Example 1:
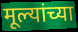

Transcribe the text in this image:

मूल्यांच्या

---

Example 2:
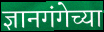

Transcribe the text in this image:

ज्ञानगंगेच्या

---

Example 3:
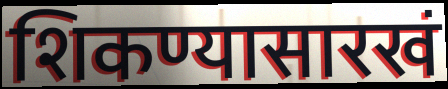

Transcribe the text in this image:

शिकण्यासारखं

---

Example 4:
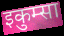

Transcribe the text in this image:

इकुम्सा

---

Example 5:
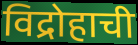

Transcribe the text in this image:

विद्रोहाची